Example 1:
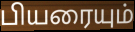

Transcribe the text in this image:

பியரையும்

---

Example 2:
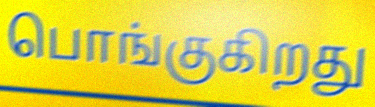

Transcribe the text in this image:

பொங்குகிறது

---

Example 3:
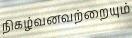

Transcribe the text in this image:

நிகழ்வனவற்றையும்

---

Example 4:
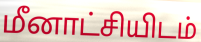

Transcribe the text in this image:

மீனாட்சியிடம்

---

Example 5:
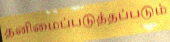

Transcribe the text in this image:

தனிமைப்படுத்தப்படும்